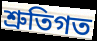
শ্রুতিগত